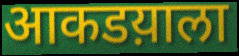
आकडय़ाला